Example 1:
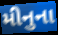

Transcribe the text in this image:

મીનુના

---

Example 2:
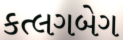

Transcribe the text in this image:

કત્લગબેગ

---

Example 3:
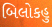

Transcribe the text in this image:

બિલોકહુ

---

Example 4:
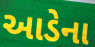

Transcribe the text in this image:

આડેના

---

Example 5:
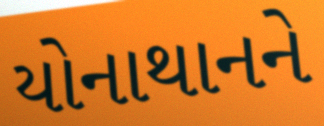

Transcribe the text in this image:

યોનાથાનને